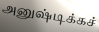
அனுஷ்டிக்கச்